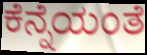
ಕೆನ್ನೆಯಂತೆ